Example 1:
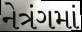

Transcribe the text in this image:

નેત્રંગમાં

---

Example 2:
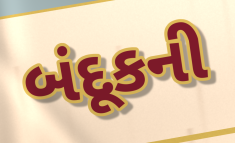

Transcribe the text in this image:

બંદૂકની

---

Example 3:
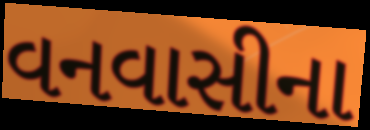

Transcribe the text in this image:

વનવાસીના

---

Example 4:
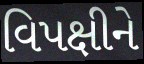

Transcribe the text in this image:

વિપક્ષીને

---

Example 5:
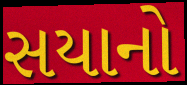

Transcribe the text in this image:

સયાનો